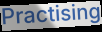
Practising